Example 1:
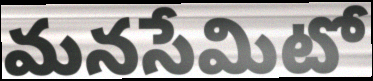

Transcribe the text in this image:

మనసేమిటో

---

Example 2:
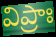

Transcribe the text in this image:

విప్రాః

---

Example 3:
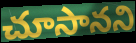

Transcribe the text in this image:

చూసానని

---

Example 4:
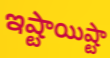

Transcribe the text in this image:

ఇష్టాయిష్టా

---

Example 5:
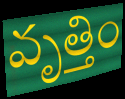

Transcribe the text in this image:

వృత్తిం